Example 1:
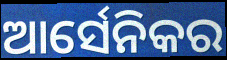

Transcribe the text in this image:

ଆର୍ସେନିକର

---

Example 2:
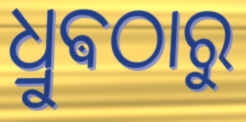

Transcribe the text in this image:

ଧ୍ରୁଵଠାରୁ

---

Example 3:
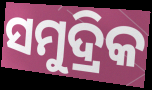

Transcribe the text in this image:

ସମୁଦ୍ରିକ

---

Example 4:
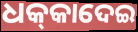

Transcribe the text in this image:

ଧକ୍‌କାଦେଇ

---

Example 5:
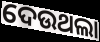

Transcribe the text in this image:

ଦେଉଥଲା